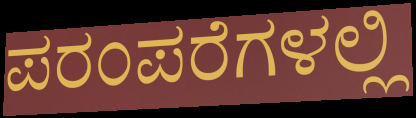
ಪರಂಪರೆಗಳಲ್ಲಿ